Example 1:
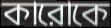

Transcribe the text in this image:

কারোকে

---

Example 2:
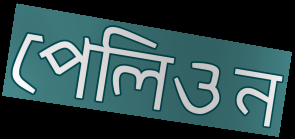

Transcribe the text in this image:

পেলিওন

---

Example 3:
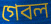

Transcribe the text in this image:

গেবল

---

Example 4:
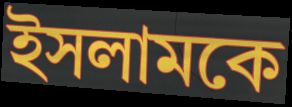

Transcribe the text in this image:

ইসলামকে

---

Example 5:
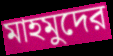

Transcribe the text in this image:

মাহমুদের